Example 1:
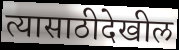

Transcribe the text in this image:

त्यासाठीदेखील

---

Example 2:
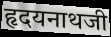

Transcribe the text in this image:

हृदयनाथजी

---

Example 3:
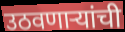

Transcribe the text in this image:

उठवणाऱ्यांची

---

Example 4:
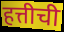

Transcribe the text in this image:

हत्तीची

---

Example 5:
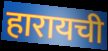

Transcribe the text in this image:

हारायची